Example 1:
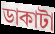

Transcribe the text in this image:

ডাকাটা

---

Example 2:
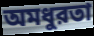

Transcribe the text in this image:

অমধুরতা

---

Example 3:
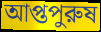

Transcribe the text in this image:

আপ্তপুরুষ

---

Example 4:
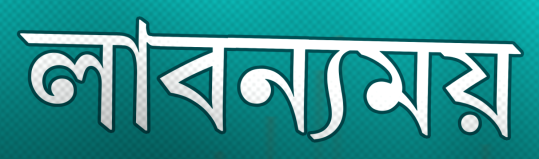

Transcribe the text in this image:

লাবন্যময়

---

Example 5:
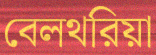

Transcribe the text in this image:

বেলথরিয়া